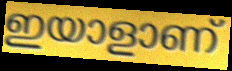
ഇയാളാണ്